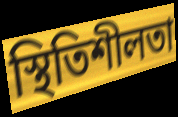
স্থিতিশীলতা